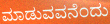
ಮಾಡುವವನೆಂದು